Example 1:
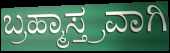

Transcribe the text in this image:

ಬ್ರಹ್ಮಾಸ್ತ್ರವಾಗಿ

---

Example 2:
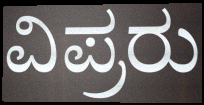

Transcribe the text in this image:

ವಿಪ್ರರು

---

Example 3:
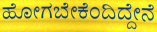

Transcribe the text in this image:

ಹೋಗಬೇಕೆಂದಿದ್ದೇನೆ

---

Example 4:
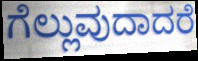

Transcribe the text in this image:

ಗೆಲ್ಲುವುದಾದರೆ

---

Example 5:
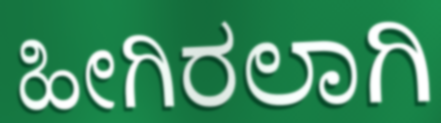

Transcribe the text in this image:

ಹೀಗಿರಲಾಗಿ